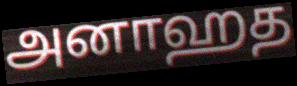
அனாஹத